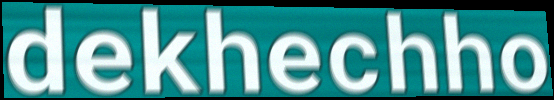
dekhechho